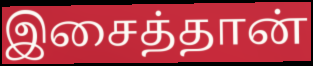
இசைத்தான்